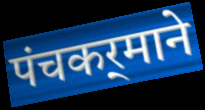
पंचकर्माने